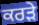
ਕਰੜੇ